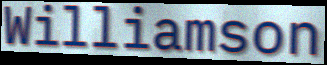
Williamson